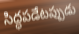
సిద్ధపడేటప్పుడు